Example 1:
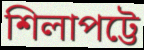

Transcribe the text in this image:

শিলাপট্টে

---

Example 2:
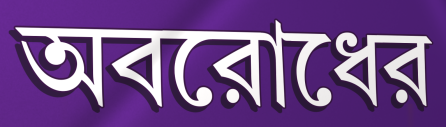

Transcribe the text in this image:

অবরোধের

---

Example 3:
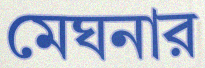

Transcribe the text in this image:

মেঘনার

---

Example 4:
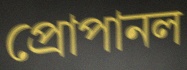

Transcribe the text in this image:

প্রোপানল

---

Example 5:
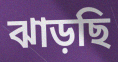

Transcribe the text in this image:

ঝাড়ছি